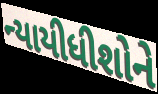
ન્યાયીધીશોને